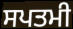
ਸਪਤਮੀ